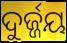
ଦୁର୍ଜ୍ଜୟ